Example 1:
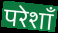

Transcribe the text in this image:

परेशाँ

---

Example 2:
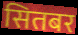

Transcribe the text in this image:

सितबर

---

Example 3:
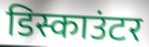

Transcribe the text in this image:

डिस्काउंटर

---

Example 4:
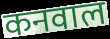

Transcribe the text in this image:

कनवाल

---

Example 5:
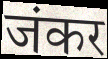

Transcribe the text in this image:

जंकर